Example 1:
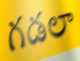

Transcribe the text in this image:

గడలా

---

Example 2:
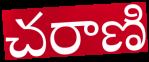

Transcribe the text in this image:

చరాణి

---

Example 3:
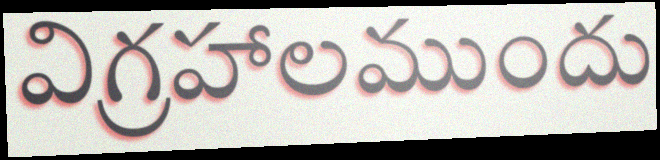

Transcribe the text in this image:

విగ్రహాలముందు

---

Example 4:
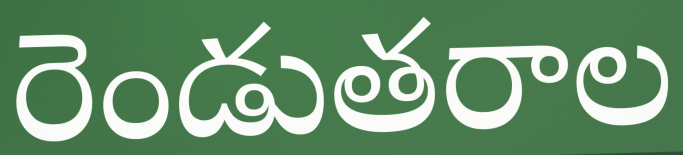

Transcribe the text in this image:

రెండుతరాల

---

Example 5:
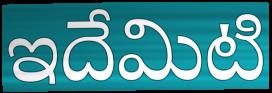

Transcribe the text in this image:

ఇదేమిటి